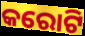
କରୋଟି